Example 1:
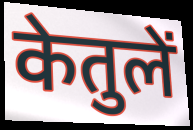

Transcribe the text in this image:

केतुलें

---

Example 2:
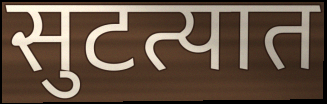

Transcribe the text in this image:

सुटत्यात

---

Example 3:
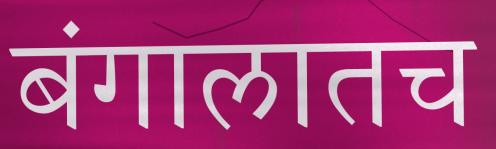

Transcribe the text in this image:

बंगालातच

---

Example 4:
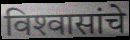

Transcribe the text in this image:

विश्‍वासांचे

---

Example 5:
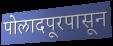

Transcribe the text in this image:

पोलादपूरपासून